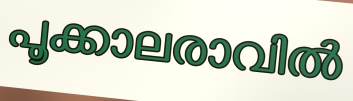
പൂക്കാലരാവിൽ